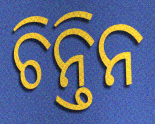
ଚିନ୍ତିନ